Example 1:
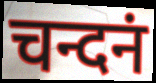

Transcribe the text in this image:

चन्दनं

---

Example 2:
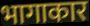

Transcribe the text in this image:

भागाकार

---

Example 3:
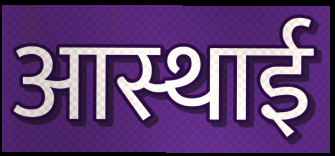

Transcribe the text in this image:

आस्थाई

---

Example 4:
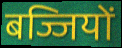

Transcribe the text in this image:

बज्जियों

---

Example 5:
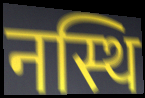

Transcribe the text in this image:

नस्थि